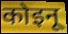
कोइनू